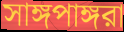
সাঙ্গপাঙ্গরা